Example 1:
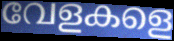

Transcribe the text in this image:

വേളകളെ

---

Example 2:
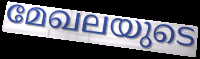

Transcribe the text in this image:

മേഖലയുടെ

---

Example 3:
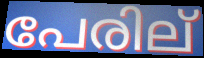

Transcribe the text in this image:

പേരില്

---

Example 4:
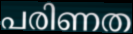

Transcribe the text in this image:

പരിണത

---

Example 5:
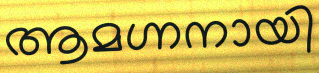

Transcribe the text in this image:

ആമഗ്നനായി